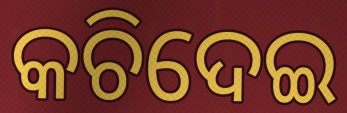
କଚିଦେଇ